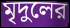
মৃদুলের